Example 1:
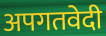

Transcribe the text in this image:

अपगतवेदी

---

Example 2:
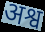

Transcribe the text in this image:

अश्व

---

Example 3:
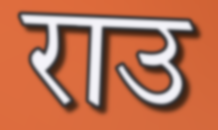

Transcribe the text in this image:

राउ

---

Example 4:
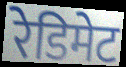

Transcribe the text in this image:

रेडिमेट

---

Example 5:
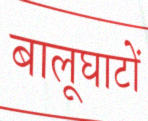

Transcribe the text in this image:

बालूघाटों